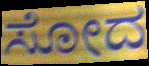
ಸೋದ